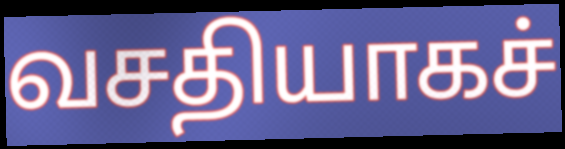
வசதியாகச்